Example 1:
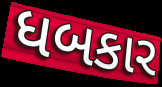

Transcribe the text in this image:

ધબકાર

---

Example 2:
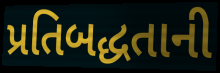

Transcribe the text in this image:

પ્રતિબદ્ધતાની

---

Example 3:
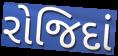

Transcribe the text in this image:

રોજિદાં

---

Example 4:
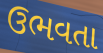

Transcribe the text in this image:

ઉભવતા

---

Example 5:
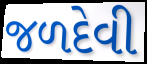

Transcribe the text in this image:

જળદેવી